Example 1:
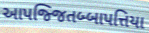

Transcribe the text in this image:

આપજ્જિતબ્બાપત્તિયા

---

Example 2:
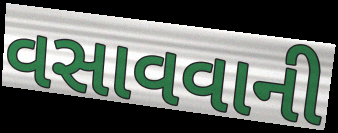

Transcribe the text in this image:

વસાવવાની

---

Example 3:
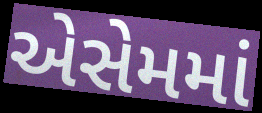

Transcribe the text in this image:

એસેમમાં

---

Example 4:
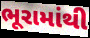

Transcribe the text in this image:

ભૂરામાંથી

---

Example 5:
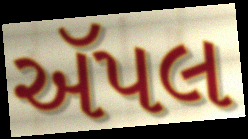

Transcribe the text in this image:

ઍપલ